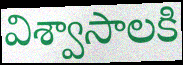
విశ్వాసాలకి